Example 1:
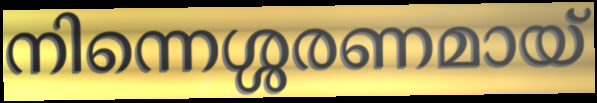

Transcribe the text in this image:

നിന്നെശ്ശരണമായ്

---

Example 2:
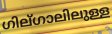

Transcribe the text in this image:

ഗില്ഗാലിലുള്ള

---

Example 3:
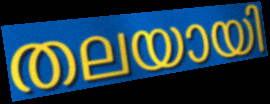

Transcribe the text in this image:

തലയായി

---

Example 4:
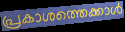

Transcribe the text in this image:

പ്രകാശത്തെക്കാൾ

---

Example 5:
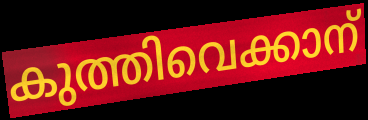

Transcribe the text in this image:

കുത്തിവെക്കാന്